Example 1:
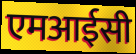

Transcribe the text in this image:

एमआईसी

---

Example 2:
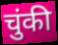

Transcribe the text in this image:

चुंकी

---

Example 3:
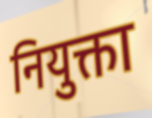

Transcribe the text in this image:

नियुक्ता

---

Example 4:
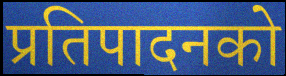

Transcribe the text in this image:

प्रतिपादनको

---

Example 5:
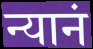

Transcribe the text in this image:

न्यानं